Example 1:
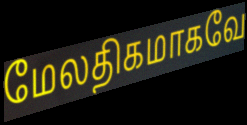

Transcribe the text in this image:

மேலதிகமாகவே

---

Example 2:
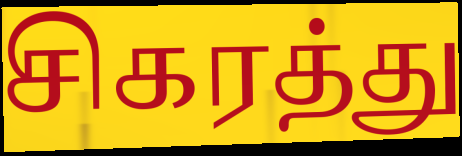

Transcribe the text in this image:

சிகரத்து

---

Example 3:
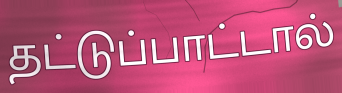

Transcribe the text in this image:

தட்டுப்பாட்டால்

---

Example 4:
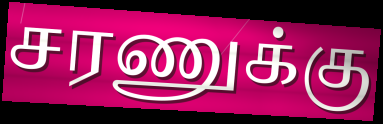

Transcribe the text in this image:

சரணுக்கு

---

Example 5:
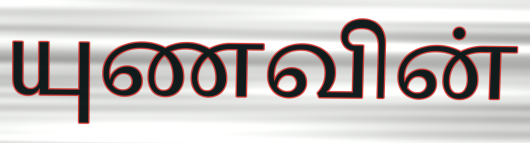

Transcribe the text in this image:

யுணவின்